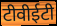
टीवीईटी